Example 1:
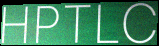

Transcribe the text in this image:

HPTLC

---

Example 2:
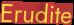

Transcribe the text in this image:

Erudite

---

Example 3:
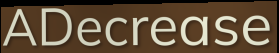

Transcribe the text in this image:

ADecrease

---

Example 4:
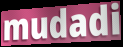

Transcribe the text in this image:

mudadi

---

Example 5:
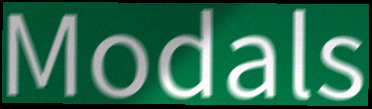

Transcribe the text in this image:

Modals